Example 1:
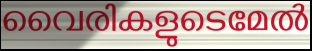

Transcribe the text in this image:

വൈരികളുടെമേൽ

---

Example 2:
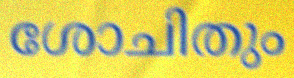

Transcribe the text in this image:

ശോചിതും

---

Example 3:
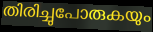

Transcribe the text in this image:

തിരിച്ചുപോരുകയും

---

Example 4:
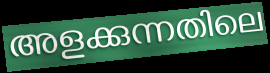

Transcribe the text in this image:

അളക്കുന്നതിലെ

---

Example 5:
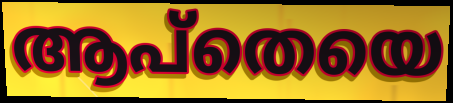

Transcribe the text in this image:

ആപ്തെയെ